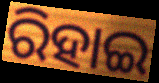
ରିହାଇ